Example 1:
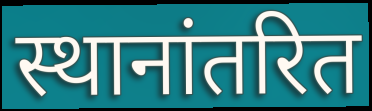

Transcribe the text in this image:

स्थानांतरित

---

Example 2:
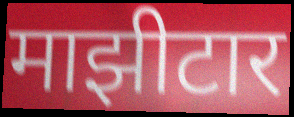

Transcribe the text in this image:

माझीटार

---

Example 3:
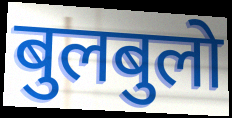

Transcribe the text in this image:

बुलबुलो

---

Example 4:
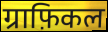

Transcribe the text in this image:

ग्राफ़िकल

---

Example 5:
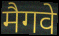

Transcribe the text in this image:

मैगवे